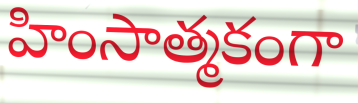
హింసాత్మకంగా